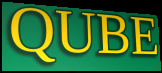
QUBE